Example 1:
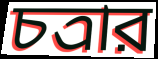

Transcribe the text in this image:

চত্রার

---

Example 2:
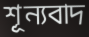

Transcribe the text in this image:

শূন্যবাদ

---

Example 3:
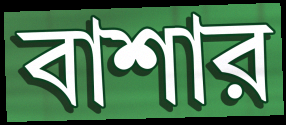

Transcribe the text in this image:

বাশার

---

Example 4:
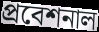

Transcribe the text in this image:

প্রবেশনাল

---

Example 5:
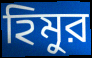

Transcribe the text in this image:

হিমুর